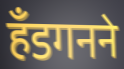
हँडगनने